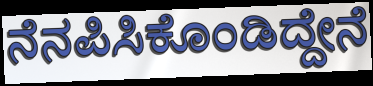
ನೆನಪಿಸಿಕೊಂಡಿದ್ದೇನೆ